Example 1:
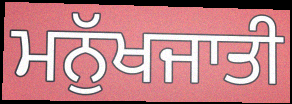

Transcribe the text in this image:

ਮਨੁੱਖਜਾਤੀ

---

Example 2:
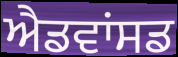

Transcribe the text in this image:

ਐਡਵਾਂਸਡ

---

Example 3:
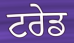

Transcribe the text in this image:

ਟਰੇਡ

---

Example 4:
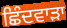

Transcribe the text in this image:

ਛਿੰਦਵਾੜਾ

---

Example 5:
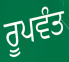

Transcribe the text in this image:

ਰੂਪਵੰਤ